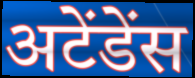
अटेंडेंस